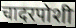
चादरपोशी